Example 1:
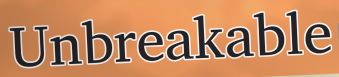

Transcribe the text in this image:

Unbreakable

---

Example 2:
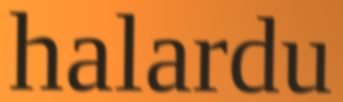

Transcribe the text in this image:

halardu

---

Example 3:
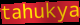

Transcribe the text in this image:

tahukya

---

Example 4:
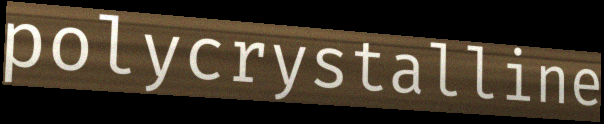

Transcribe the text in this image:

polycrystalline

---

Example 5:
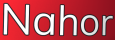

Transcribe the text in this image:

Nahor